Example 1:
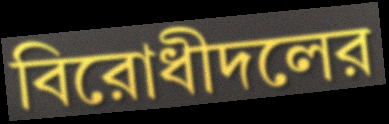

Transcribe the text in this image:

বিরোধীদলের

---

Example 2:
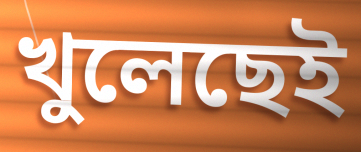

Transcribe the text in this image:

খুলেছেই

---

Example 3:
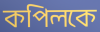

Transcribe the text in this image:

কপিলকে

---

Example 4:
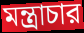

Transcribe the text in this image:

মন্ত্রাচার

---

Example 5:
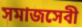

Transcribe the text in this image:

সমাজসেবী